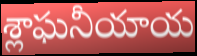
శ్లాఘనీయాయ